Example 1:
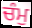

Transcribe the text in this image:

ਚੰਮੁ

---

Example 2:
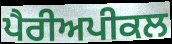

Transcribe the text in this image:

ਪੈਰੀਅਪੀਕਲ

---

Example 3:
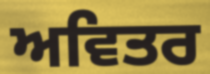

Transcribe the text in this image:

ਅਵਿਤਰ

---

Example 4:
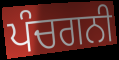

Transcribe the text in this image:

ਪੰਚਗਨੀ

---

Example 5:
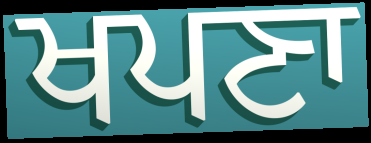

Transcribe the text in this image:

ਖਪਣਾ